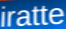
iratte